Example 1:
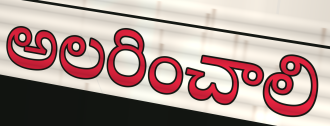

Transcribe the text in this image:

అలరించాలి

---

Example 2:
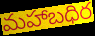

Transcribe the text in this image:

మహాబధిర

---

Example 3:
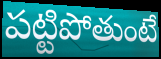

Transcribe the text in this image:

పట్టిపోతుంటే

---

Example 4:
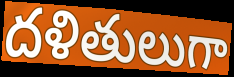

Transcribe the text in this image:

దళితులుగా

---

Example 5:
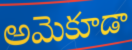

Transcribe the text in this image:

అమెకూడా